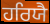
ਹਰਿਯੈ